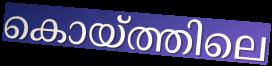
കൊയ്ത്തിലെ